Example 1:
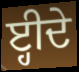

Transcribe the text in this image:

ੲ੍ਹੀਦੇ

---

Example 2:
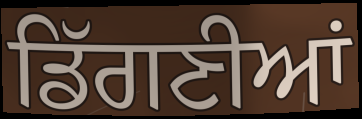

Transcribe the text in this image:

ਡਿੱਗਣੀਆਂ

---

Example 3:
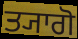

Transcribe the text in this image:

ਤ੍ਯਾਗੋ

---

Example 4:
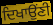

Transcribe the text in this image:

ਦਿਖਾਉਂਣੀ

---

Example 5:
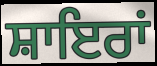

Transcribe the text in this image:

ਸ਼ਾਇਰਾਂ